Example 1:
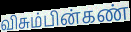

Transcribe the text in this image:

விசும்பின்கண்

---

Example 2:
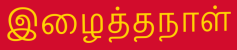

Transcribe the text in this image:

இழைத்தநாள்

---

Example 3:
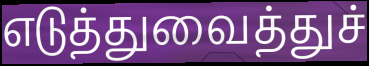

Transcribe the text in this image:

எடுத்துவைத்துச்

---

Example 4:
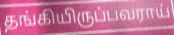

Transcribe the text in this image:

தங்கியிருப்பவராய்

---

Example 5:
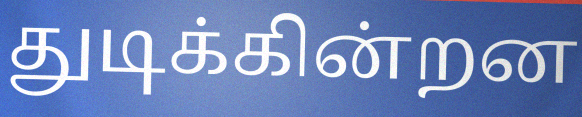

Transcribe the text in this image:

துடிக்கின்றன